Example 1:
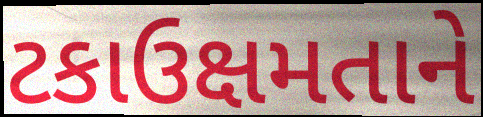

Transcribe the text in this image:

ટકાઉક્ષમતાને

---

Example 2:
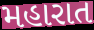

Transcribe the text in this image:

મહારાત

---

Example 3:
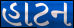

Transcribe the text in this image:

હાટન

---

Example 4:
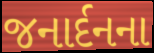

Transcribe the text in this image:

જનાર્દનના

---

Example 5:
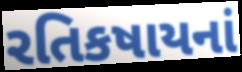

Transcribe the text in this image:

રતિકષાયનાં